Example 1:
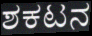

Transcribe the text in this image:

ಶಕಟನ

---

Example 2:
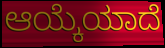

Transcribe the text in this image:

ಆಯ್ಕೆಯಾದೆ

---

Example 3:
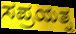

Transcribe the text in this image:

ಸಪ್ರಯತ್ನ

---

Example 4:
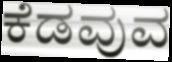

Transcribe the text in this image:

ಕೆಡವುವ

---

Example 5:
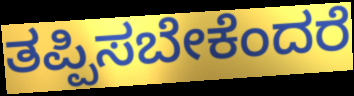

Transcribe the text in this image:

ತಪ್ಪಿಸಬೇಕೆಂದರೆ